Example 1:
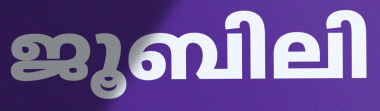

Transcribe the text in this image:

ജൂബിലി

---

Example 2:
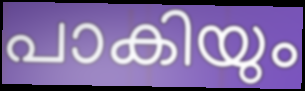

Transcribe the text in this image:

പാകിയും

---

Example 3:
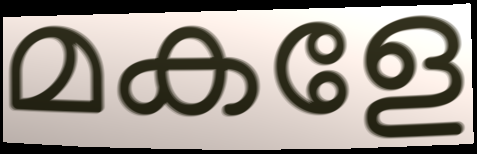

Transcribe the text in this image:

മകളേ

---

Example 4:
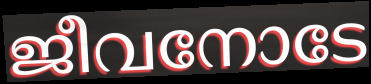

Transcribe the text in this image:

ജീവനോടേ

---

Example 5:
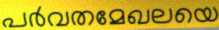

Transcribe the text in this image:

പർവതമേഖലയെ